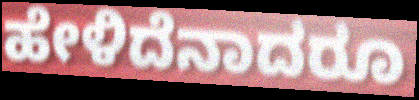
ಹೇಳಿದೆನಾದರೂ